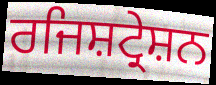
ਰਜਿਸ਼ਟ੍ਰੇਸ਼ਨ